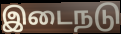
இடைநடு